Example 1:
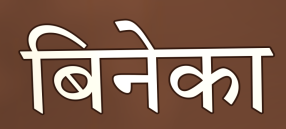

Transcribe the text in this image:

बिनेका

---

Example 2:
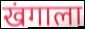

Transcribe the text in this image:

खंगाला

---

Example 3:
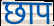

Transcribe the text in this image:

छाप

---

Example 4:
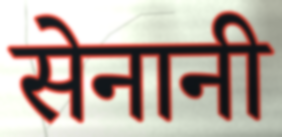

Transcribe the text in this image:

सेनानी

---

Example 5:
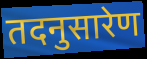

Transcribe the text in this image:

तदनुसारेण